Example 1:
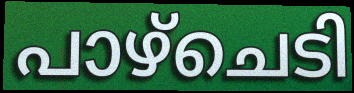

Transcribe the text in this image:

പാഴ്ചെടി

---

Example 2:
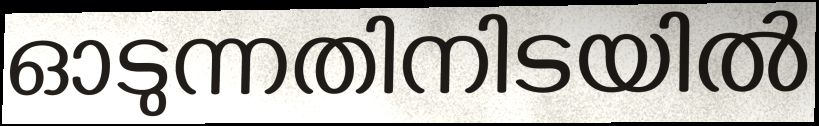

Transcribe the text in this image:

ഓടുന്നതിനിടയിൽ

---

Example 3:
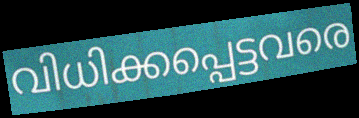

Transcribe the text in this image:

വിധിക്കപ്പെട്ടവരെ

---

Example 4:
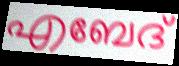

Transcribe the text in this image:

എബേദ്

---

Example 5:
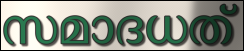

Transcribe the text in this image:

സമാദധത്